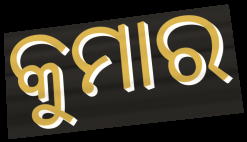
କୁମାର